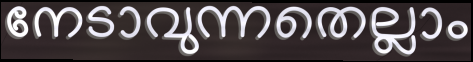
നേടാവുന്നതെല്ലാം